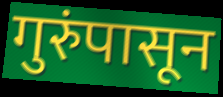
गुरुंपासून